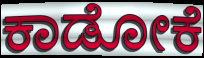
ಕಾಡೋಕೆ